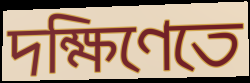
দক্ষিণেতে